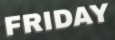
FRIDAY